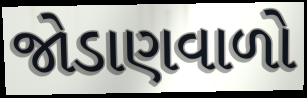
જોડાણવાળો